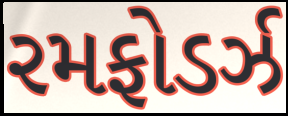
રમફોડર્ઝ